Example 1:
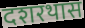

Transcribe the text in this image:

दशरथास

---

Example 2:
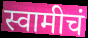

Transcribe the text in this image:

स्वामीचं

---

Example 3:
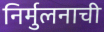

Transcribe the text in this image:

निर्मुलनाची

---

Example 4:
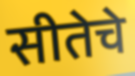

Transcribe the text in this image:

सीतेचे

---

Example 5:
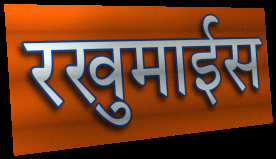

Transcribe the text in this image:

रखुमाईस